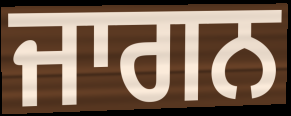
ਜਾਗਨ